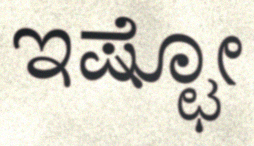
ಇಷ್ಟೋ